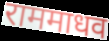
राममाधव